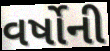
વર્ષોની